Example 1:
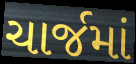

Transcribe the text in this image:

ચાર્જમાં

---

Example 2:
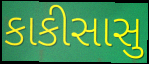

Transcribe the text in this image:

કાકીસાસુ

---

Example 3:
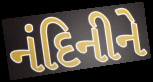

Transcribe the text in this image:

નંદિનીને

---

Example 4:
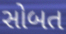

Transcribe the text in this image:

સોબત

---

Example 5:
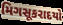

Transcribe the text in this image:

મિગસૂકરાદયો